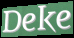
Deke